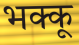
भक्कू